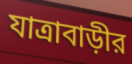
যাত্রাবাড়ীর